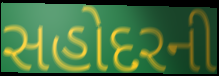
સહોદરની